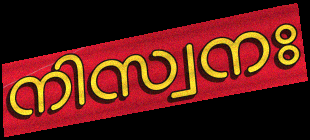
നിസ്വനഃ